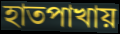
হাতপাখায়